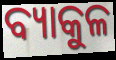
ବ୍ୟାକୁଳ